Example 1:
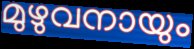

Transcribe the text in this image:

മുഴുവനായും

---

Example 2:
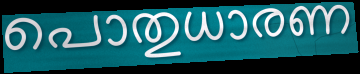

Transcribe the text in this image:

പൊതുധാരണ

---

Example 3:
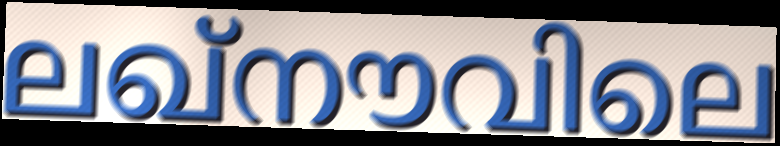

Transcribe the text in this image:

ലഖ്നൗവിലെ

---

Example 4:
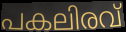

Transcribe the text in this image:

പകലിരവ്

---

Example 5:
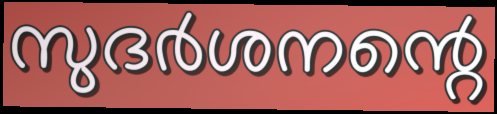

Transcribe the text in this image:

സുദർശനന്റെ